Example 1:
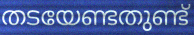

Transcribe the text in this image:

തടയേണ്ടതുണ്ട്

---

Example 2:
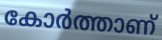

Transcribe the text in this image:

കോർത്താണ്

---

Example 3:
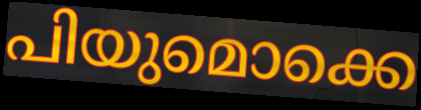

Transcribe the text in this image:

പിയുമൊക്കെ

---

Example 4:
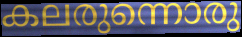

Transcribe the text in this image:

കലരുന്നൊരു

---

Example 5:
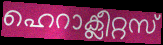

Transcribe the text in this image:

ഹെറാക്ലീറ്റസ്